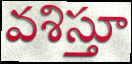
వశిస్తూ